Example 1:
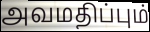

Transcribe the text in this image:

அவமதிப்பும்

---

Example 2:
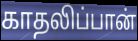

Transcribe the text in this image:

காதலிப்பான்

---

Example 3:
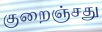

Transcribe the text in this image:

குறைஞ்சது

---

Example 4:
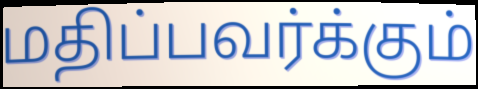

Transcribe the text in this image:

மதிப்பவர்க்கும்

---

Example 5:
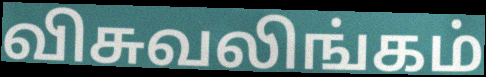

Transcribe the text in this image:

விசுவலிங்கம்